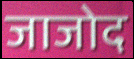
जाजोद